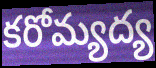
కరోమ్యద్య